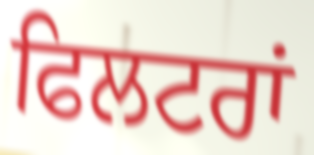
ਫਿਲਟਰਾਂ